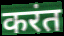
करंत